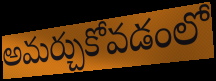
అమర్చుకోవడంలో